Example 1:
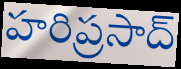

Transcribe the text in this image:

హరిప్రసాద్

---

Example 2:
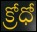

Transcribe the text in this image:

క్రోధో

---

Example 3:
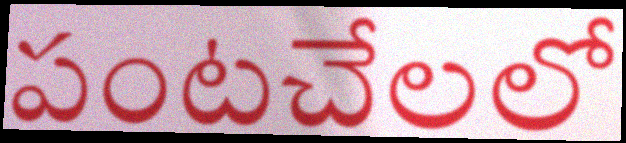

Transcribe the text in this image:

పంటచేలలో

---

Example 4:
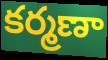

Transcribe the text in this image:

కర్మణా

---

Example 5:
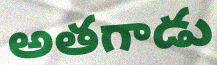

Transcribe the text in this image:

అతగాడు